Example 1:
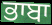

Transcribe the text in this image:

ਭਾਬਾ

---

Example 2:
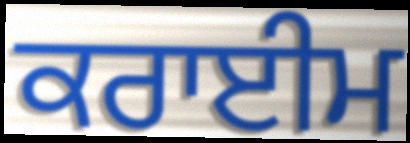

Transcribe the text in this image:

ਕਰਾਈਮ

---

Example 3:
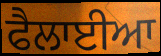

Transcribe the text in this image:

ਫੈਲਾਈਆ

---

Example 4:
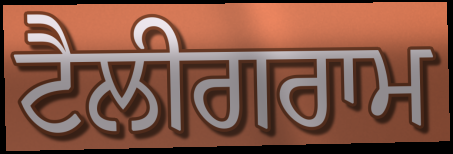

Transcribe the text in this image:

ਟੈਲੀਗਰਾਮ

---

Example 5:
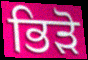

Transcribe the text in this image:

ਭਿੜੋ